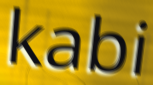
kabi